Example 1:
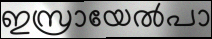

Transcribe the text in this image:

ഇസ്രായേൽപാ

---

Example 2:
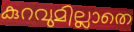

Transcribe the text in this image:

കുറവുമില്ലാതെ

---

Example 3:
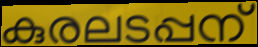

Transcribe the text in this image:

കുരലടപ്പന്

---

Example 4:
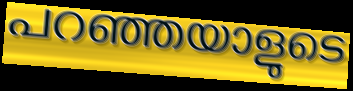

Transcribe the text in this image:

പറഞ്ഞയാളുടെ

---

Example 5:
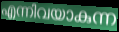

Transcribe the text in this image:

എന്നിവയാകുന്ന